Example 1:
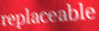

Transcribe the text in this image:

replaceable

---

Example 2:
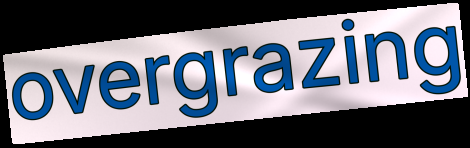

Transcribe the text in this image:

overgrazing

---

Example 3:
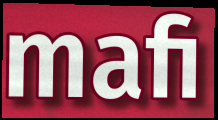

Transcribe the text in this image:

mafi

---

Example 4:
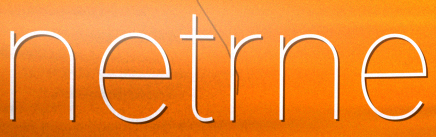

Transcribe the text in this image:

netrne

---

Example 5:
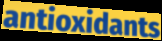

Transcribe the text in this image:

antioxidants